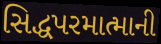
સિદ્ધપરમાત્માની